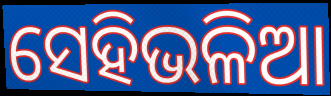
ସେହିଭଳିଆ